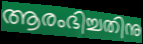
ആരംഭിച്ചതിനു